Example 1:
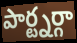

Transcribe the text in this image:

పార్ట్నర్గా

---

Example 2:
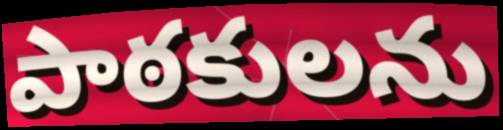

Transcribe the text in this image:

పాఠకులను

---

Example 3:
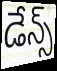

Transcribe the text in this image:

డేన్స్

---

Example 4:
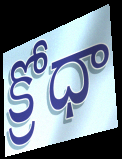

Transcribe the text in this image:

క్రోధా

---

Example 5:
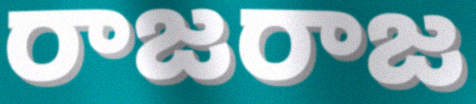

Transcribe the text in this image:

రాజరాజ